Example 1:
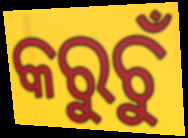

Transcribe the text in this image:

କରୁଚୁଁ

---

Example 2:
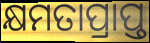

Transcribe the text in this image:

କ୍ଷମତାପ୍ରାପ୍ତ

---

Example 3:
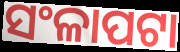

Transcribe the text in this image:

ସଂଳାପଟା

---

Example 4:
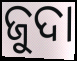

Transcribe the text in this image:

ଜୁଦା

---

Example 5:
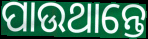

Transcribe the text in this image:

ପାଉଥାନ୍ତେ